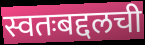
स्वतःबद्दलची